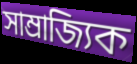
সাম্ৰাজ্যিক